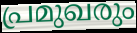
പ്രമുഖരും